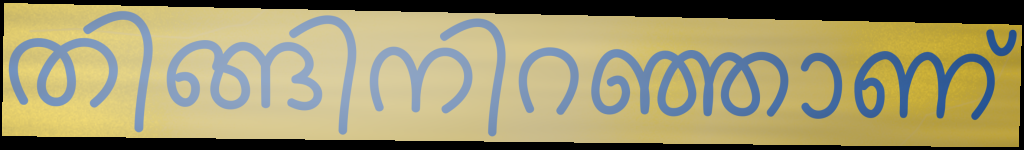
തിങ്ങിനിറഞ്ഞാണ്